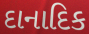
દાનાદિક